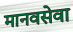
मानवसेवा